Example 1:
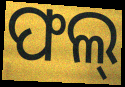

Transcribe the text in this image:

ଫଲ୍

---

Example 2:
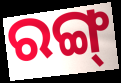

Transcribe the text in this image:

ରଙ୍ଗ୍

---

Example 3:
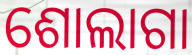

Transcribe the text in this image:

ଶୋଲାଗା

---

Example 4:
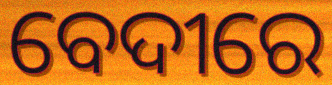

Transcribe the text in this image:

ବେଦୀରେ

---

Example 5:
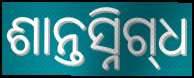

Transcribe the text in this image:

ଶାନ୍ତସ୍ନିଗ୍‌ଧ